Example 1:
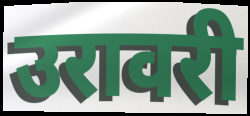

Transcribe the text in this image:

उरावरी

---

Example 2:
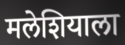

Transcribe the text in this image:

मलेशियाला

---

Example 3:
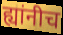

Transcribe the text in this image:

ह्यांनीच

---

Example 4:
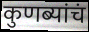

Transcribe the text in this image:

कुणब्यांचं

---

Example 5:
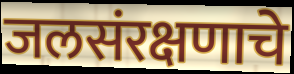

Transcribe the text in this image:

जलसंरक्षणाचे